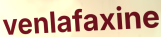
venlafaxine